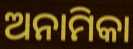
ଅନାମିକା